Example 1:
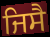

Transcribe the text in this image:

ਜਿਸੈ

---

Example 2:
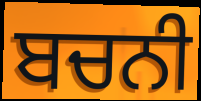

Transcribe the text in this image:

ਬਚਨੀ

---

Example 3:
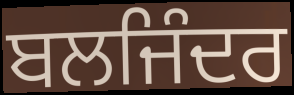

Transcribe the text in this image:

ਬਲਜਿੰਦਰ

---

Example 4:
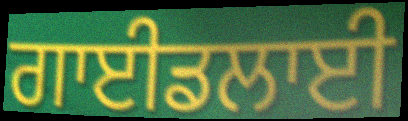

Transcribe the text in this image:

ਗਾਈਡਲਾਈ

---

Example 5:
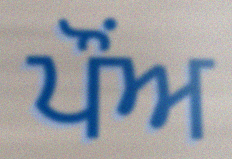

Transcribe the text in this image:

ਪੌਂਅ